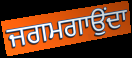
ਜਗਮਗਾਉਂਦਾ